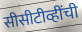
सीसीटीव्हींची